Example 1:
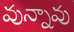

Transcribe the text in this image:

వున్నావు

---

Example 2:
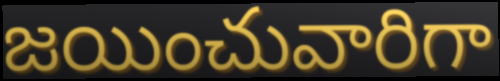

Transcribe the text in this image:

జయించువారిగా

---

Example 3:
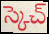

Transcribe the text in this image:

స్కెచ్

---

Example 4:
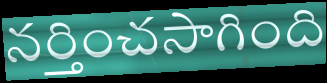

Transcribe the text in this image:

నర్తించసాగింది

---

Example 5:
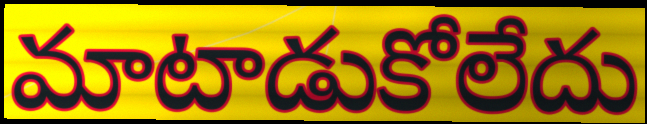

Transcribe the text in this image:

మాటాడుకోలేదు